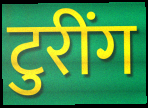
टुरींग